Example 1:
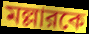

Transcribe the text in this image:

মল্লারকে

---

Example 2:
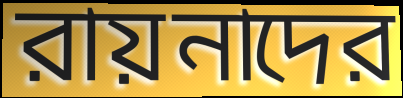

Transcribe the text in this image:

রায়নাদের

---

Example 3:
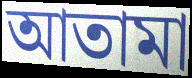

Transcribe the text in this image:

আতামা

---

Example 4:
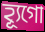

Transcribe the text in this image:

হ্যূগো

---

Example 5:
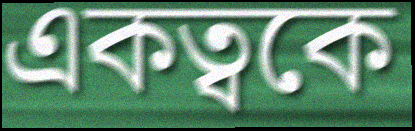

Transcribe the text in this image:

একত্বকে